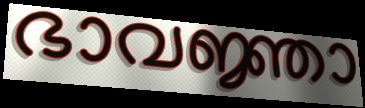
ഭാവജ്ഞാ